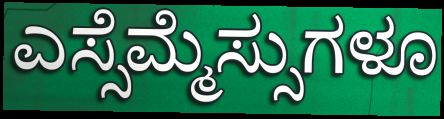
ಎಸ್ಸೆಮ್ಮೆಸ್ಸುಗಳೂ